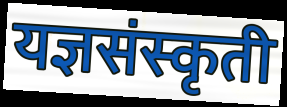
यज्ञसंस्कृती